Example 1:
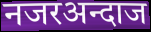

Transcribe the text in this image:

नजरअन्दाज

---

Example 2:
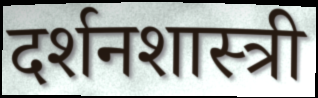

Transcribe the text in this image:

दर्शनशास्त्री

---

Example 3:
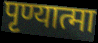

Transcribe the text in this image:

पृण्यात्मा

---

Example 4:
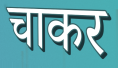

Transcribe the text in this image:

चाकर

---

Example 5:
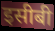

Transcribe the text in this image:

इसीबी